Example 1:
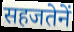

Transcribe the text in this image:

सहजतेनें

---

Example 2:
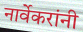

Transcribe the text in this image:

नार्वेकरांनी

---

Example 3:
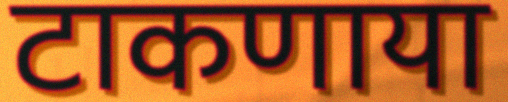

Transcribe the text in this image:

टाकणाया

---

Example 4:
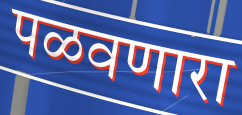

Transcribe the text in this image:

पळवणारा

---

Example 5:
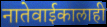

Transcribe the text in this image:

नातेवाईकालाही